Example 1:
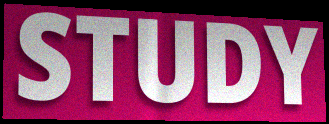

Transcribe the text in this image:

STUDY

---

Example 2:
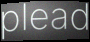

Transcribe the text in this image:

plead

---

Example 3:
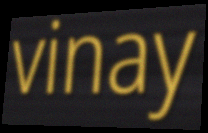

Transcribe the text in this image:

vinay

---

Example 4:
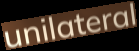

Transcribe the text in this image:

unilateral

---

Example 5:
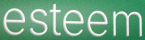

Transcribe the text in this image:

esteem